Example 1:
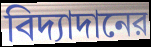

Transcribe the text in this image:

বিদ্যাদানের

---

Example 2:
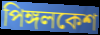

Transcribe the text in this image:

পিঙ্গলকেশ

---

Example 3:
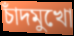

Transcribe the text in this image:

চাঁদমুখো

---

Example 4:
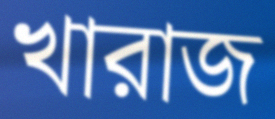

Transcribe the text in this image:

খারাজ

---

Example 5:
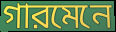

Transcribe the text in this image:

গারমেনে